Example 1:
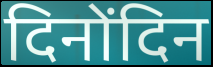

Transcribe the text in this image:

दिनोंदिन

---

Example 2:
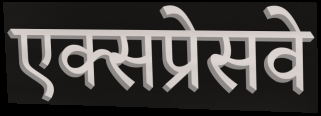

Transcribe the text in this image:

एक्सप्रेसवे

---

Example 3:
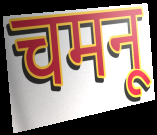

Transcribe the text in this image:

चमनू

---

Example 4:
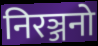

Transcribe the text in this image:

निरञ्जनो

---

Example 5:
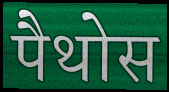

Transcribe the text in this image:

पैथोस